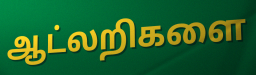
ஆட்லறிகளை